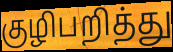
குழிபறித்து